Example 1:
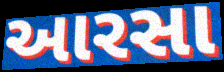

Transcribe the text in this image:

આરસા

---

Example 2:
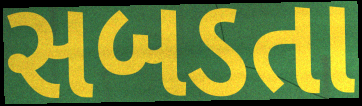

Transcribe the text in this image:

સબડતા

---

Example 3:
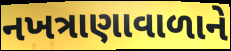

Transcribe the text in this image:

નખત્રાણાવાળાને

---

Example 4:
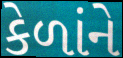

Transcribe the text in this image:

કેળાંને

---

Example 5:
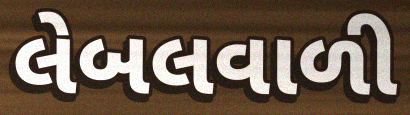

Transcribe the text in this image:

લેબલવાળી